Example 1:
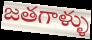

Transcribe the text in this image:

జతగాళ్ళు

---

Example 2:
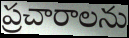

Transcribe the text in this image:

ప్రచారాలను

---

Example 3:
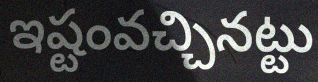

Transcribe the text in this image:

ఇష్టంవచ్చినట్టు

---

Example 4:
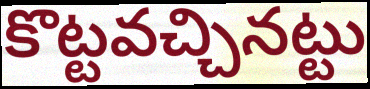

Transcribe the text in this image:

కొట్టవచ్చినట్టు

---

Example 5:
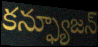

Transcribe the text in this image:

కన్ఫ్యూజన్